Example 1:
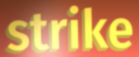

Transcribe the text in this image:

strike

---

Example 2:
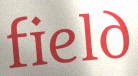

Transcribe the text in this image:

field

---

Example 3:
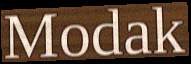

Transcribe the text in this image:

Modak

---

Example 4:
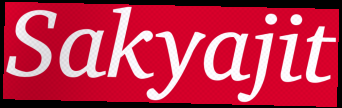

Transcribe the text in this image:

Sakyajit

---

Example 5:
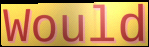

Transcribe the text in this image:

Would